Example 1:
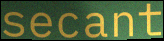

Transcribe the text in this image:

secant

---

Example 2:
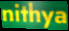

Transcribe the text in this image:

nithya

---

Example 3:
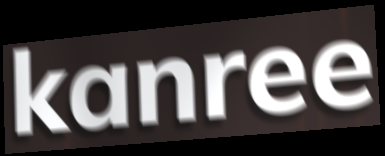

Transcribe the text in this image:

kanree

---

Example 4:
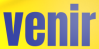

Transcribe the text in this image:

venir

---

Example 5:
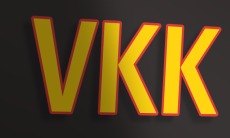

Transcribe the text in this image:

VKK